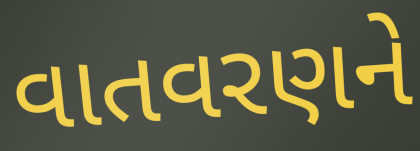
વાતવરણને